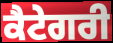
ਕੈਟੇਗਰੀ